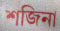
শজিনা